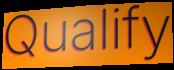
Qualify